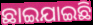
ଛାଇଯାଇଛି